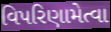
વિપરિણામેત્વા